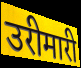
उरीमारी